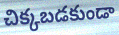
చిక్కబడకుండా